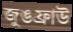
জুঙফ্রাউ